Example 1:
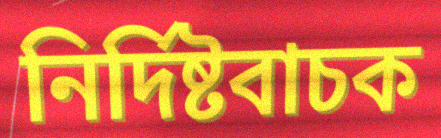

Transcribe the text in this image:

নিৰ্দিষ্টবাচক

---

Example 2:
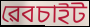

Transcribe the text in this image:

ৱেবচাইট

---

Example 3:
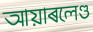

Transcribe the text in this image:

আয়াৰলেণ্ড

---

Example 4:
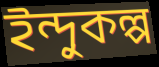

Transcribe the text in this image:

ইন্দুকল্প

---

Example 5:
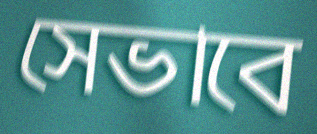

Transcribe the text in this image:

সেভাবে